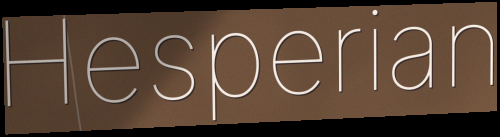
Hesperian